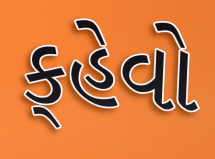
ક્‌હેવો